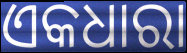
ଏକଧାରା